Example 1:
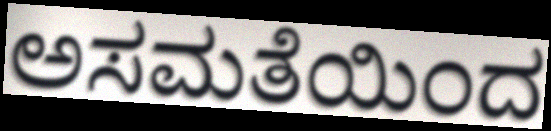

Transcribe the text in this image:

ಅಸಮತೆಯಿಂದ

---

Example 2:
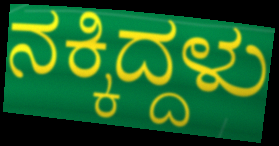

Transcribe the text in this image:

ನಕ್ಕಿದ್ದಳು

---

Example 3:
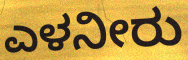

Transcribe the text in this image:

ಎಳನೀರು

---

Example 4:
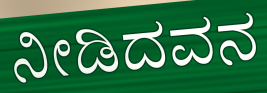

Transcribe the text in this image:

ನೀಡಿದವನ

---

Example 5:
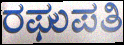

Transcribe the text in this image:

ರಘುಪತಿ